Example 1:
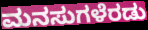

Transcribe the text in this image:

ಮನಸುಗಳೆರಡು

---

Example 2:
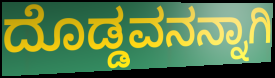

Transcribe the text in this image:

ದೊಡ್ಡವನನ್ನಾಗಿ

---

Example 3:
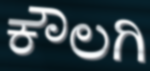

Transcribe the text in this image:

ಕೌಲಗಿ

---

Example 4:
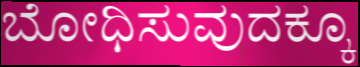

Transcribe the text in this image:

ಬೋಧಿಸುವುದಕ್ಕೂ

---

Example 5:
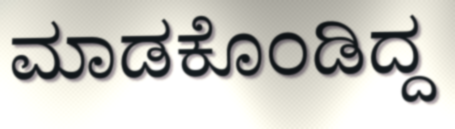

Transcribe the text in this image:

ಮಾಡಕೊಂಡಿದ್ದ